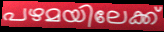
പഴമയിലേക്ക്